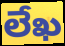
లేఖ